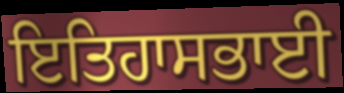
ਇਤਿਹਾਸਭਾਈ